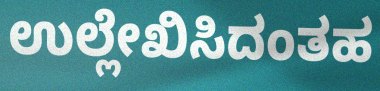
ಉಲ್ಲೇಖಿಸಿದಂತಹ